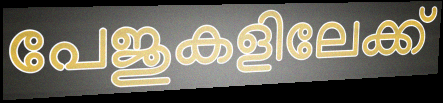
പേജുകളിലേക്ക്